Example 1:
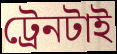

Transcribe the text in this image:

ট্রেনটাই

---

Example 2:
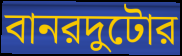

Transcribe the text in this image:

বানরদুটোর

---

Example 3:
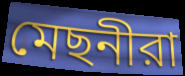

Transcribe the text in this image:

মেছনীরা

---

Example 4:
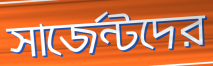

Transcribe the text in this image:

সার্জেন্টদের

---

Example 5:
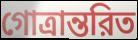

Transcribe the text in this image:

গোত্রান্তরিত